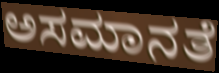
ಅಸಮಾನತೆ